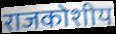
राजकोशीय